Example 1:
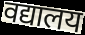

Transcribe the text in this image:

वद्यालय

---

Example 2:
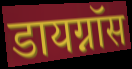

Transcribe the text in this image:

डायग्नॉस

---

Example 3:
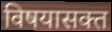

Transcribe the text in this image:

विषयासक्त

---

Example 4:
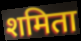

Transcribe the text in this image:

शमिता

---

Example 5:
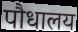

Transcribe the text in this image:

पौधालय